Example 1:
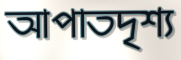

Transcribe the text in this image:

আপাতদৃশ্য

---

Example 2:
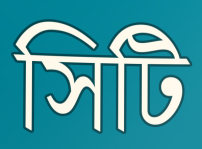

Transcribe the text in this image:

সিটি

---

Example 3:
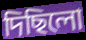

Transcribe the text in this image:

দিছিলো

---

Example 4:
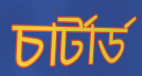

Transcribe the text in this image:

চার্টার্ড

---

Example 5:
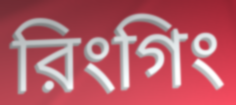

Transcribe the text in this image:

রিংগিং